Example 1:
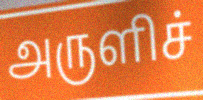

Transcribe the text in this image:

அருளிச்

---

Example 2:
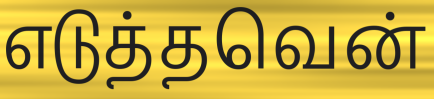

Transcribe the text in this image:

எடுத்தவென்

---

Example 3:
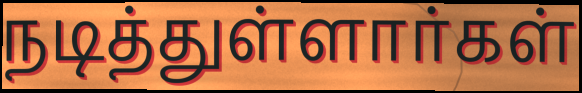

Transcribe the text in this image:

நடித்துள்ளார்கள்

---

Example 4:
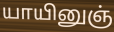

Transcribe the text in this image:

யாயினுஞ்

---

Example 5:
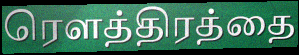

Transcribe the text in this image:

ரௌத்திரத்தை